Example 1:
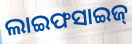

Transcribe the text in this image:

ଲାଇଫସାଇଜ୍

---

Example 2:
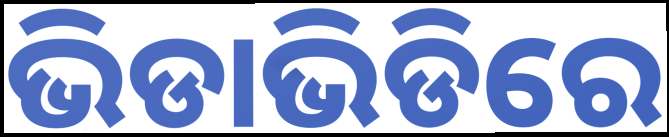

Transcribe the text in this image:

ଭିଡାଭିଡିରେ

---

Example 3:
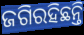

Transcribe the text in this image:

ଜଗିରହିଛନ୍ତି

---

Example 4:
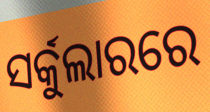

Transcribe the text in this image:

ସର୍କୁଲାରରେ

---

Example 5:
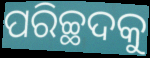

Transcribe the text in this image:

ପରିଚ୍ଛଦକୁ